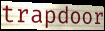
trapdoor